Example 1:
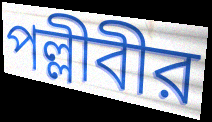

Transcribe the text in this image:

পল্লীবীর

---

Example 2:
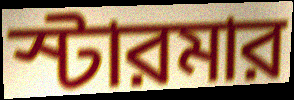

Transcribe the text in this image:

স্টারমার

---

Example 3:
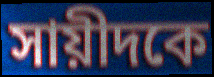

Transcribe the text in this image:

সায়ীদকে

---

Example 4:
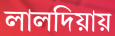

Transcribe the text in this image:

লালদিয়ায়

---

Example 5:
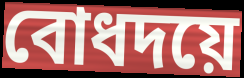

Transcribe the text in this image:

বোধদয়ে